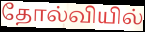
தோல்வியில்